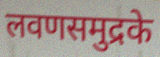
लवणसमुद्रके